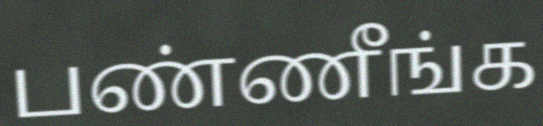
பண்ணீங்க